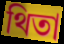
থিতা